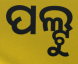
ପଲ୍ଟୁ